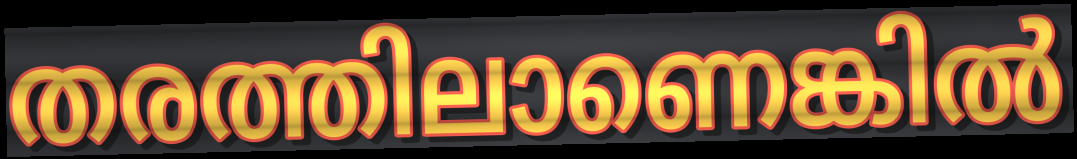
തരത്തിലാണെങ്കിൽ